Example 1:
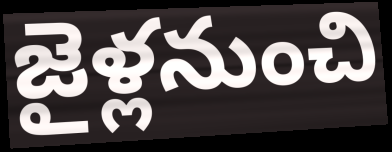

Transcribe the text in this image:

జైళ్లనుంచి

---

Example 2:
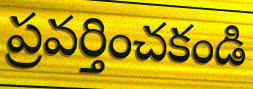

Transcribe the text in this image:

ప్రవర్తించకండి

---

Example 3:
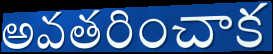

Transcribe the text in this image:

అవతరించాక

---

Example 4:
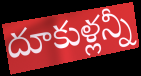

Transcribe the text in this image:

దూకుళ్లన్నీ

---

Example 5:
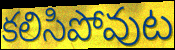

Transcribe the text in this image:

కలిసిపోవుట